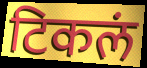
टिकलं